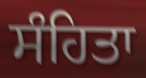
ਸੰਹਿਤਾ